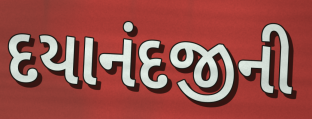
દયાનંદજીની